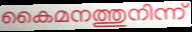
കൈമനത്തുനിന്ന്